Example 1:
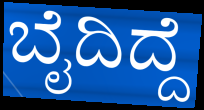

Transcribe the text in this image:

ಬೈದಿದ್ದೆ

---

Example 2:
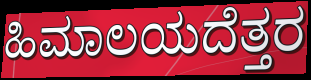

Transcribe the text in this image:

ಹಿಮಾಲಯದೆತ್ತರ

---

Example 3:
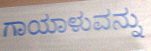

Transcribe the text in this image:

ಗಾಯಾಳುವನ್ನು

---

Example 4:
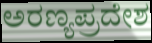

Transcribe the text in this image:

ಅರಣ್ಯಪ್ರದೇಶ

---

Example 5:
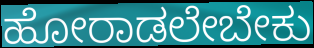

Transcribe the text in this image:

ಹೋರಾಡಲೇಬೇಕು